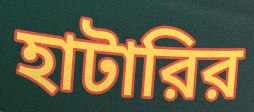
হাটারির